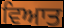
ਵਿਆਤ